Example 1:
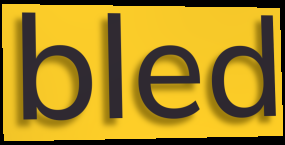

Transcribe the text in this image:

bled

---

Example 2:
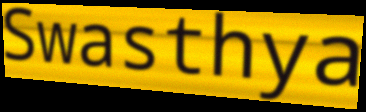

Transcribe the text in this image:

Swasthya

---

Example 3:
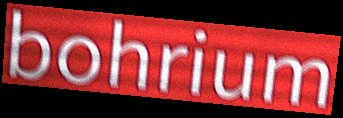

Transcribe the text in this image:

bohrium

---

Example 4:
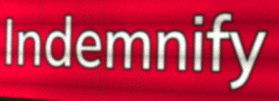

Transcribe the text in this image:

Indemnify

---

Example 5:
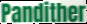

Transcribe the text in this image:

Pandither